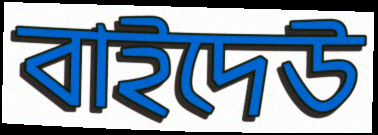
বাইদেউ